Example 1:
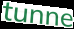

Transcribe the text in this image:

tunne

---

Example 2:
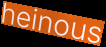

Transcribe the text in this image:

heinous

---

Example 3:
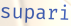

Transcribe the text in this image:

supari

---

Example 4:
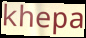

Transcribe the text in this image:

khepa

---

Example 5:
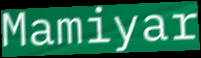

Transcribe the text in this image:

Mamiyar